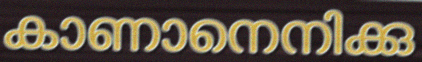
കാണാനെനിക്കു